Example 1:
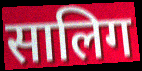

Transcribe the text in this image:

सालिग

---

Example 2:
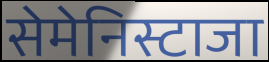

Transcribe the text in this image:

सेमेनिस्टाजा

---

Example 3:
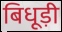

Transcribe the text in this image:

बिधूड़ी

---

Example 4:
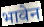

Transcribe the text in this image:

भावेन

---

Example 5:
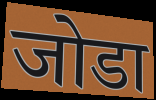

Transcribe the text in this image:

जोडा